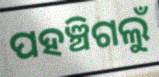
ପହଞ୍ଚିଗଲୁଁ